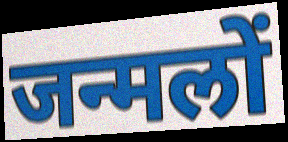
जन्मलों